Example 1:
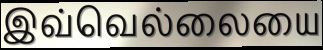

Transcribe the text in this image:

இவ்வெல்லையை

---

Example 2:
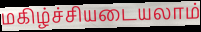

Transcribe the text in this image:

மகிழ்ச்சியடையலாம்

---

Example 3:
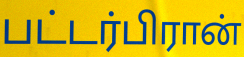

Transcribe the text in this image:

பட்டர்பிரான்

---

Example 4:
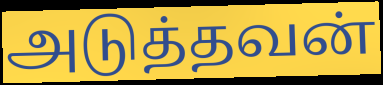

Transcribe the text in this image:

அடுத்தவன்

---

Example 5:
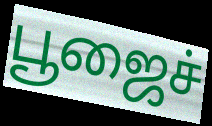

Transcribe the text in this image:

பூஜைச்